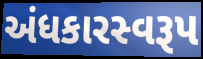
અંધકારસ્વરૂપ